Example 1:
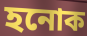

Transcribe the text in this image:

হনোক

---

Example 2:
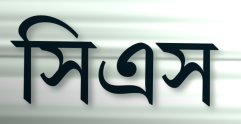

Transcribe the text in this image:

সিএস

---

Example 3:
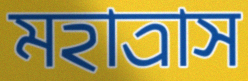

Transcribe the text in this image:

মহাত্রাস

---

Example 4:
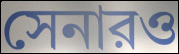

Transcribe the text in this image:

সেনারও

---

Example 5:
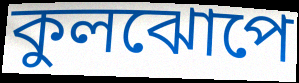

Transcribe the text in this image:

কুলঝোপে